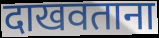
दाखवताना